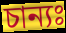
চান্যঃ